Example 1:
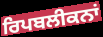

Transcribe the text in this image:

ਰਿਪਬਲੀਕਨਾਂ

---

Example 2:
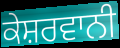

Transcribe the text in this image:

ਕੇਸ਼ਰਵਾਨੀ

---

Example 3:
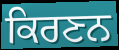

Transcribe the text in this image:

ਕਿਰਣਨ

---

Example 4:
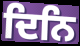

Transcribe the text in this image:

ਦਿਨਿ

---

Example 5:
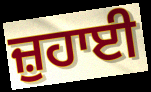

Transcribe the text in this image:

ਜ਼ੁਹਾਈ